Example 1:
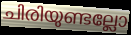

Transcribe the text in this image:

ചിരിയുണ്ടല്ലോ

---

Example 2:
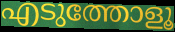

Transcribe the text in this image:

എടുത്തോളൂ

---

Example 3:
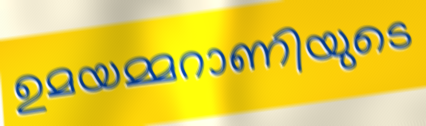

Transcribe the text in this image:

ഉമയമ്മറാണിയുടെ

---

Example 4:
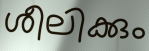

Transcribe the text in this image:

ശീലിക്കും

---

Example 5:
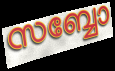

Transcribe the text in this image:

സബ്ബോ